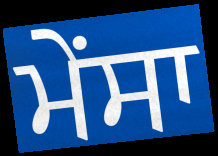
ਮੇਂਸਾ